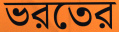
ভরতের